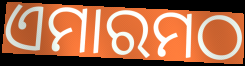
ଏମାରମଠ